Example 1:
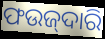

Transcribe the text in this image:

ଫଉଜ୍‌ଦାରି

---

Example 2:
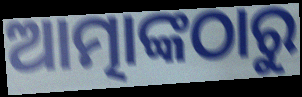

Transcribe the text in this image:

ଆତ୍ମାଙ୍କଠାରୁ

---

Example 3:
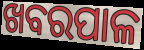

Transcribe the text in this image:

ଖବରପାଳ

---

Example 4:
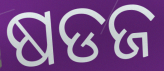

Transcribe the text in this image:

ଷଡଜ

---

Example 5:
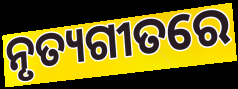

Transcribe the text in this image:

ନୃତ୍ୟଗୀତରେ